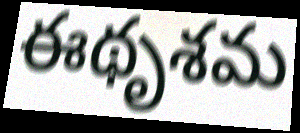
ఈథృశమ